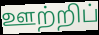
ஊற்றிப்